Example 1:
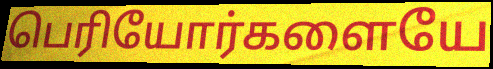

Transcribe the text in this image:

பெரியோர்களையே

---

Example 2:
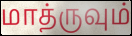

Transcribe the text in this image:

மாத்ருவும்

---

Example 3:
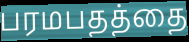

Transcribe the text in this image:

பரமபதத்தை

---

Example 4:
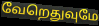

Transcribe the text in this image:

வேறெதுவுமே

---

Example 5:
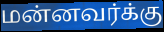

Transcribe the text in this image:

மன்னவர்க்கு